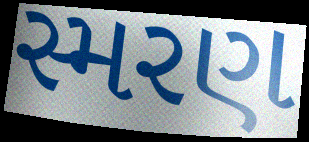
સ્મરણ